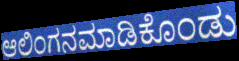
ಆಲಿಂಗನಮಾಡಿಕೊಂಡು